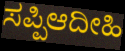
ಸಪ್ಪಿಆದೀಹಿ